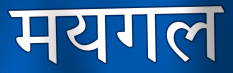
मयगल